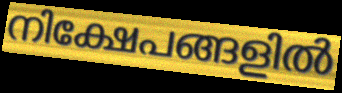
നിക്ഷേപങ്ങളിൽ